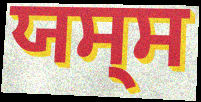
ਯਸ੍ਸ